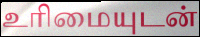
உரிமையுடன்